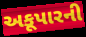
અકૂપારની